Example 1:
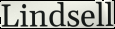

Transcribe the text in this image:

Lindsell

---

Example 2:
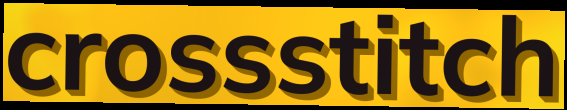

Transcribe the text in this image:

crossstitch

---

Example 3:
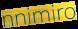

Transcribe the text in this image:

nnimiro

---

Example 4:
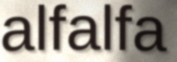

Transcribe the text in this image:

alfalfa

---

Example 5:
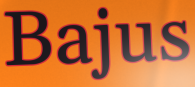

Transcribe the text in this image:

Bajus